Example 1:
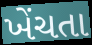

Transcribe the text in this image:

ખેંચતા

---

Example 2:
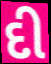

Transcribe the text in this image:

દી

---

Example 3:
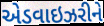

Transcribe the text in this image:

એડવાઇઝરીને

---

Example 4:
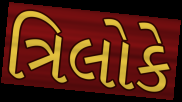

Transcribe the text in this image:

ત્રિલોકે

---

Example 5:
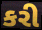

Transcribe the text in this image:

કરી